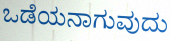
ಒಡೆಯನಾಗುವುದು